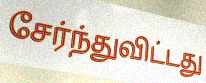
சேர்ந்துவிட்டது